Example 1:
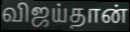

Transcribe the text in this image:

விஜய்தான்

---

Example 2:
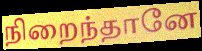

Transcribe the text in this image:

நிறைந்தானே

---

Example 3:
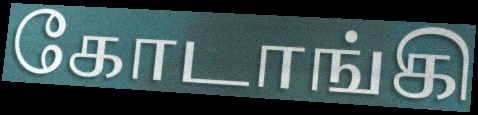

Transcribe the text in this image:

கோடாங்கி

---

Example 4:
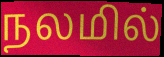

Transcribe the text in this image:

நலமில்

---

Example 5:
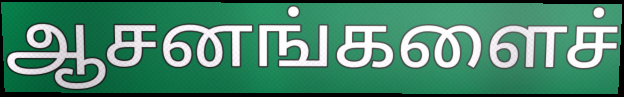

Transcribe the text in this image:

ஆசனங்களைச்